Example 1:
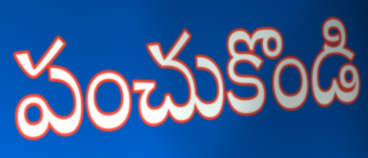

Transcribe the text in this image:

పంచుకొండి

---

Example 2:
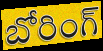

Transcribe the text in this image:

బోరింగ్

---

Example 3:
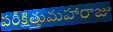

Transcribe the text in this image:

పరీక్షిత్తుమహారాజు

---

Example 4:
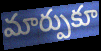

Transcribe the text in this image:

మార్పుకూ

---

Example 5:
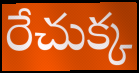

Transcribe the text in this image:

రేచుక్క